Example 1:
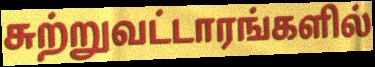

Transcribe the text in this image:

சுற்றுவட்டாரங்களில்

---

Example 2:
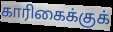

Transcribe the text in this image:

காரிகைக்குக்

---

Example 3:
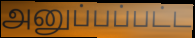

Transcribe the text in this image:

அனுப்பப்பட்ட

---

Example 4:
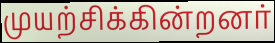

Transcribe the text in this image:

முயற்சிக்கின்றனர்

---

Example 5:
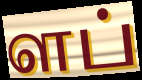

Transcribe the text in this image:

ளப்